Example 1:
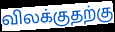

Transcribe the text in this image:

விலக்குதற்கு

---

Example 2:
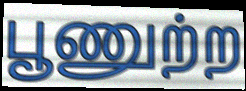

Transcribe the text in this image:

பூணுற்ற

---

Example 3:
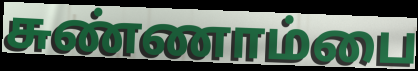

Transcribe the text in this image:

சுண்ணாம்பை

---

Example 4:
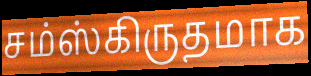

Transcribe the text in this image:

சம்ஸ்கிருதமாக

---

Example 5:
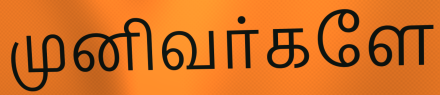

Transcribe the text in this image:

முனிவர்களே